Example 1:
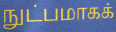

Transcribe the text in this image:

நுட்பமாகக்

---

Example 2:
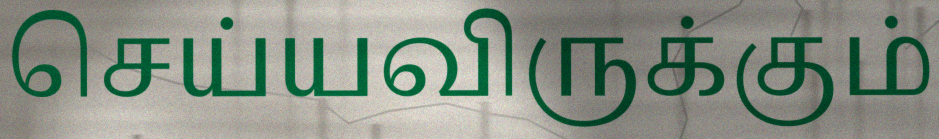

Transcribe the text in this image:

செய்யவிருக்கும்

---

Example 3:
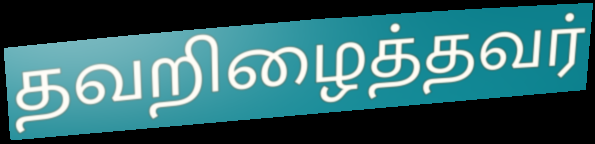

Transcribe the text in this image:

தவறிழைத்தவர்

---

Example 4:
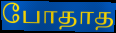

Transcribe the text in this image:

போதாத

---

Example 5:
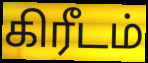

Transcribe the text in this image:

கிரீடம்